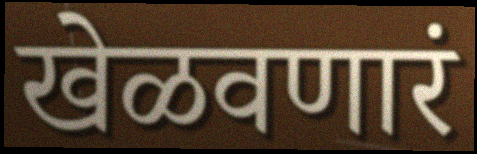
खेळवणारं